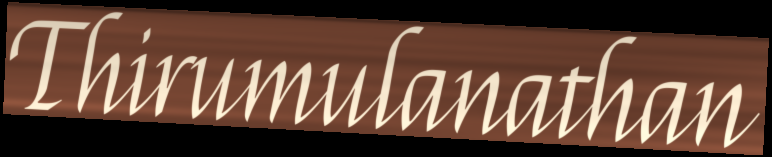
Thirumulanathan